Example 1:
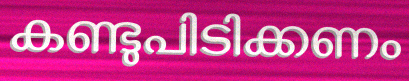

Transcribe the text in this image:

കണ്ടുപിടിക്കണം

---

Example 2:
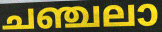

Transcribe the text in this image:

ചഞ്ചലാ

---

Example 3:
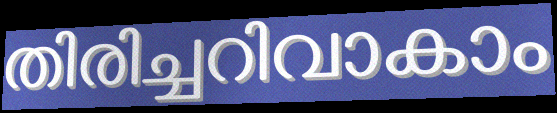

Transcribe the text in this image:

തിരിച്ചറിവാകാം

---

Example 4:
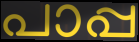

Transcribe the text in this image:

പാപ്പ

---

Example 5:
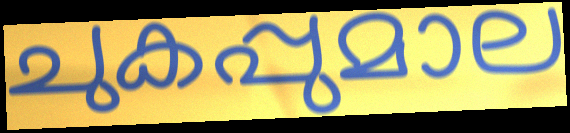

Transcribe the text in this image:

ചുകപ്പുമാല